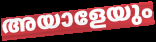
അയാളേയും